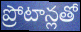
ప్రోటాన్లతో